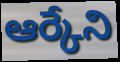
ఆర్కేని